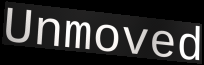
Unmoved